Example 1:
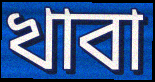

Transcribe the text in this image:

খাবা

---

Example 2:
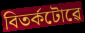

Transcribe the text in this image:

বিতৰ্কটোৱে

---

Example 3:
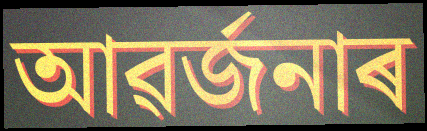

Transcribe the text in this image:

আৱৰ্জনাৰ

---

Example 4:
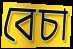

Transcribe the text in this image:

বেচা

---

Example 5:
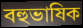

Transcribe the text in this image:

বহুভাষিক